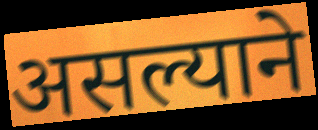
असल्याने